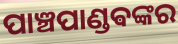
ପାଞ୍ଚପାଣ୍ଡଵଙ୍କର